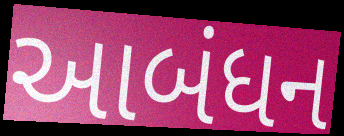
આબંધન